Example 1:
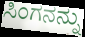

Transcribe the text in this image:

ಸಿಂಗನನ್ನು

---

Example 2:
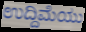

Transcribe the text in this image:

ಉದ್ದಿಮೆಯು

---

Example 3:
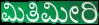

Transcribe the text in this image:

ಮಿತಿಮೀರಿ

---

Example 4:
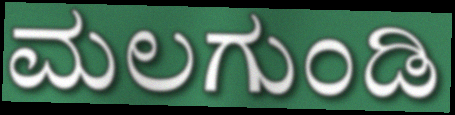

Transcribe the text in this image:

ಮಲಗುಂಡಿ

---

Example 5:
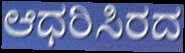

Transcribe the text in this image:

ಆಧರಿಸಿರದ